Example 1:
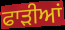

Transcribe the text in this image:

ਫਾੜੀਆਂ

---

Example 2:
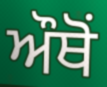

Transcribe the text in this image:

ਔਥੋਂ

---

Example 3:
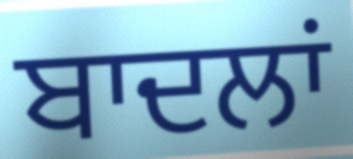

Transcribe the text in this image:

ਬਾਦਲਾਂ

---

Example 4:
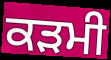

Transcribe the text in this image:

ਕੜਮੀ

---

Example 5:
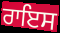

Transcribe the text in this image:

ਰਾਇਸ